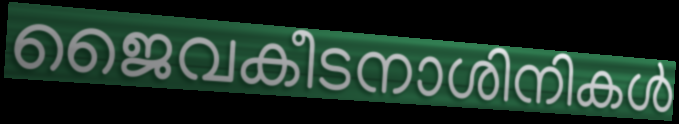
ജൈവകീടനാശിനികൾ